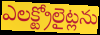
ఎలక్ట్రోలైట్లను